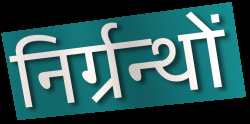
निर्ग्रन्थों